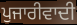
ਪੁਜਾਰੀਵਾਦੀ